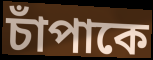
চাঁপাকে